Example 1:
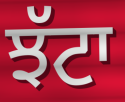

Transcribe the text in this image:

ਝੱਟਾ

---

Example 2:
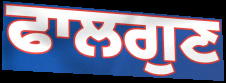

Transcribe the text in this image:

ਫਾਲਗੁਣ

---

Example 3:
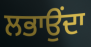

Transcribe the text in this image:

ਲਭਾਉਂਦਾ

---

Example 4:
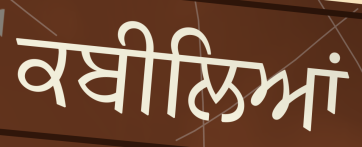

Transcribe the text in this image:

ਕਬੀਲਿਆਂ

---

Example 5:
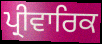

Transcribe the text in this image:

ਪ੍ਰੀਵਾਰਿਕ